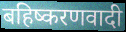
बहिष्करणवादी